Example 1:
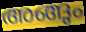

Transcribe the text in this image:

അങ്ങും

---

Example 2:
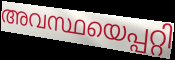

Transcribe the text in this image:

അവസ്ഥയെപ്പറ്റി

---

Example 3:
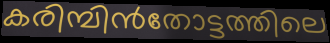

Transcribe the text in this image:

കരിമ്പിൻതോട്ടത്തിലെ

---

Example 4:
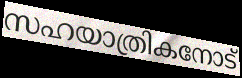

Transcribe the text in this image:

സഹയാത്രികനോട്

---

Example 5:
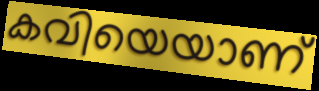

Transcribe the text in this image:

കവിയെയാണ്